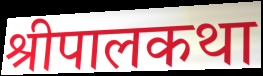
श्रीपालकथा